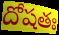
దోషతః